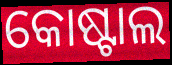
କୋଷ୍ଟାଲ